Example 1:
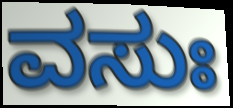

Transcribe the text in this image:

ವಸುಃ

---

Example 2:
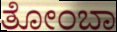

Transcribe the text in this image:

ತೋಂಬಾ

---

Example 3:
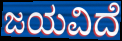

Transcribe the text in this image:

ಜಯವಿದೆ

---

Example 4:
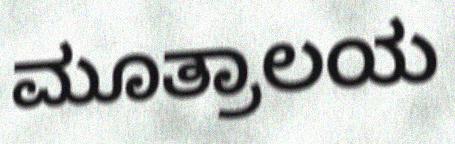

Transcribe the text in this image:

ಮೂತ್ರಾಲಯ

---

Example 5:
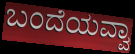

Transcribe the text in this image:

ಬಂದೆಯವ್ವಾ